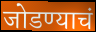
जोडण्याचं